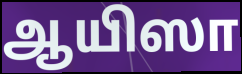
ஆயிஸா